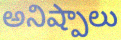
అనిష్పాలు